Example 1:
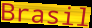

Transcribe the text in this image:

Brasil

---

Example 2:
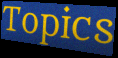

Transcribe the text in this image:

Topics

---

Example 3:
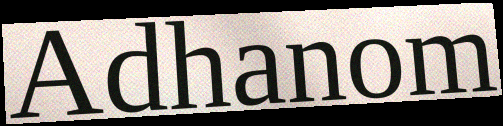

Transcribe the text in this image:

Adhanom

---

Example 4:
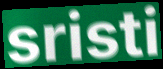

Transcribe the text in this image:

sristi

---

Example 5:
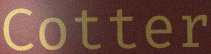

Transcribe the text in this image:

Cotter